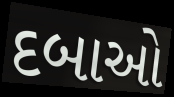
દબાઓ